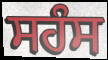
ਸਹੰਸ